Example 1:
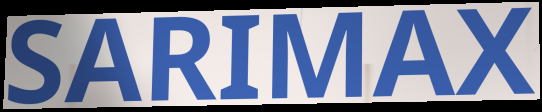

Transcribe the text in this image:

SARIMAX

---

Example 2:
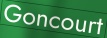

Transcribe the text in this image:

Goncourt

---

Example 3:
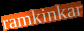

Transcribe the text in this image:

ramkinkar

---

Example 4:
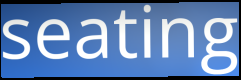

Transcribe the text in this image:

seating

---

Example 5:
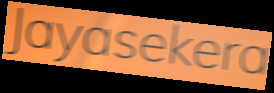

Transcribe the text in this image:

Jayasekera